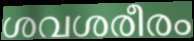
ശവശരീരം